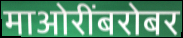
माओरींबरोबर